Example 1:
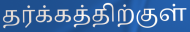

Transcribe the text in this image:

தர்க்கத்திற்குள்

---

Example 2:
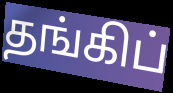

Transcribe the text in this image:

தங்கிப்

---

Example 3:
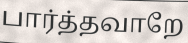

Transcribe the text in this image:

பார்த்தவாறே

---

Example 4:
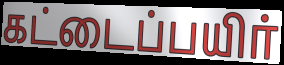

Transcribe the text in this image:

கட்டைப்பயிர்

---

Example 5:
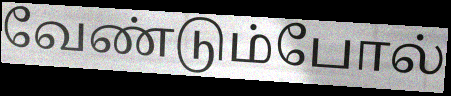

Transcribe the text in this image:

வேண்டும்போல்